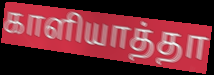
காளியாத்தா